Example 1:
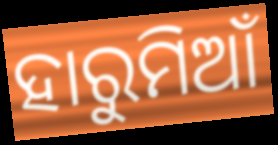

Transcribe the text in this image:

ହାରୁମିଆଁ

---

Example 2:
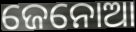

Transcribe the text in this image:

ଜେନୋଆ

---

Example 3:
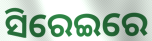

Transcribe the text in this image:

ସିରେଇରେ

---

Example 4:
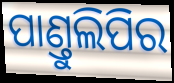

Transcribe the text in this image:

ପାଣ୍ତୁଲିପିର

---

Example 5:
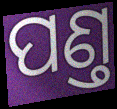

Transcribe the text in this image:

ପଣ୍ତ